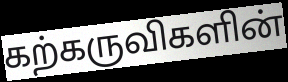
கற்கருவிகளின்